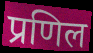
प्रणिल